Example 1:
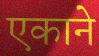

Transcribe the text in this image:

एकाने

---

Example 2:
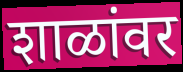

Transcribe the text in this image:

शाळांवर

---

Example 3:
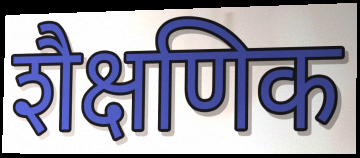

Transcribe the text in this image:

शैक्षणिक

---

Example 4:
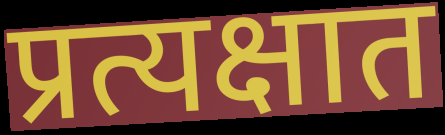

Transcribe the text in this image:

प्रत्यक्षात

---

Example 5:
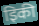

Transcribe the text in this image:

इिकी